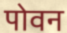
पोवन